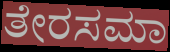
ತೇರಸಮಾ